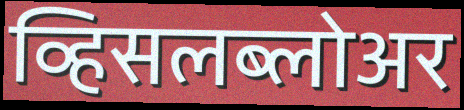
व्हिसलब्लोअर